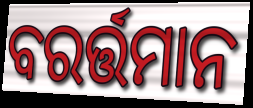
ବରର୍ତ୍ତମାନ